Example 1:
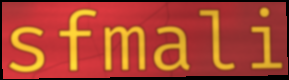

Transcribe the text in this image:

sfmali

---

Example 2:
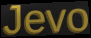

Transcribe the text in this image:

Jevo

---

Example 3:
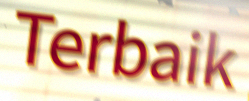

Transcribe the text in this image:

Terbaik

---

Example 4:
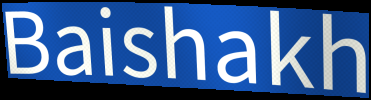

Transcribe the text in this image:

Baishakh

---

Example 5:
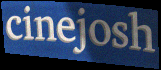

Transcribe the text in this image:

cinejosh